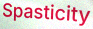
Spasticity